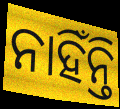
ନାହିଁନ୍ତି